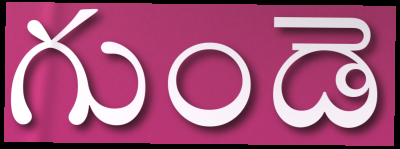
గుండె